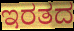
ಇರತದ